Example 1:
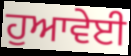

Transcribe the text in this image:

ਹੁਆਵੇਈ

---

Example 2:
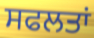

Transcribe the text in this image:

ਸਫਲਤਾਂ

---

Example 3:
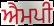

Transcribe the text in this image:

ਐਮਪੀ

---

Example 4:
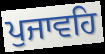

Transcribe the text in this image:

ਪੁਜਾਵਹਿ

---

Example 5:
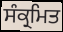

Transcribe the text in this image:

ਸੰਕ੍ਰਮਿਤ